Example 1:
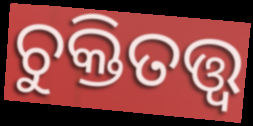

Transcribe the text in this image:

ଚୁକ୍ତିତତ୍ତ୍ଵ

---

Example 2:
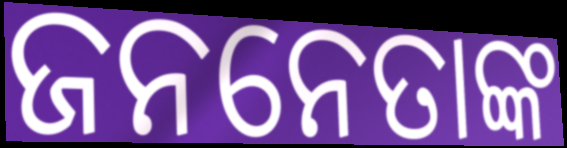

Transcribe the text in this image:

ଜନନେତାଙ୍କ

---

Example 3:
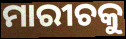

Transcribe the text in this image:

ମାରୀଚକୁ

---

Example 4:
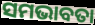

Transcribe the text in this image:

ସମଭାବତା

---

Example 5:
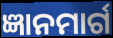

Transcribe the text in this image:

ଜ୍ଞାନମାର୍ଗ